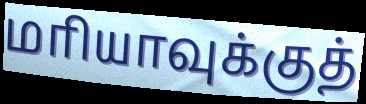
மரியாவுக்குத்